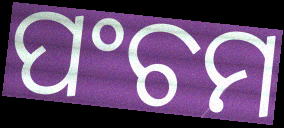
ପଂଚମ